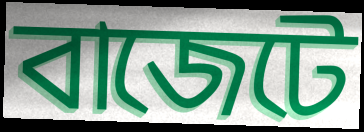
বাজেটে